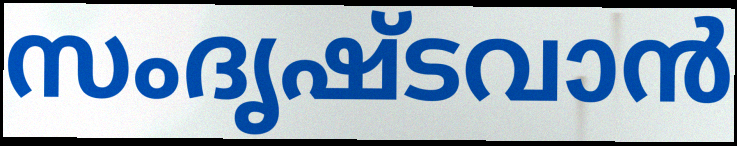
സംദൃഷ്ടവാൻ